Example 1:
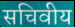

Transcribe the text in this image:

सचिवीय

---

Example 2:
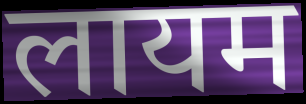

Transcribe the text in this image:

लायम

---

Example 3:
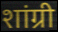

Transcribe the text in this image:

शांग्री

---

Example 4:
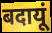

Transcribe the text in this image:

बदायूं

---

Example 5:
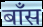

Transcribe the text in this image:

बाँस